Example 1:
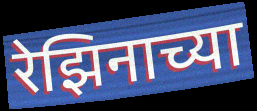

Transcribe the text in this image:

रेझिनाच्या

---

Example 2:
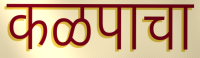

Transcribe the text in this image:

कळपाचा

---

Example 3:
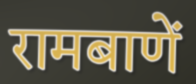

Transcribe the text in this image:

रामबाणें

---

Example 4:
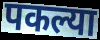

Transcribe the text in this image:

पकल्या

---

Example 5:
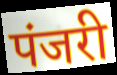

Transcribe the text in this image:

पंजरी